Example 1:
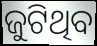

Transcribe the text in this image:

ଜୁଟିଥିବ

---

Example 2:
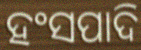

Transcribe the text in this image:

ହଂସପାଦି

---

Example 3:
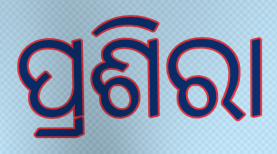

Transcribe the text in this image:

ପ୍ରଶିରା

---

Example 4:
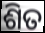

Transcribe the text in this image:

ଶିତ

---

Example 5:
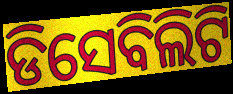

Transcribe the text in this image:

ଡିସେବିଲିଟି